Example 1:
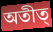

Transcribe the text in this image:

অতীত্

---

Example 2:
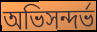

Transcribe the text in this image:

অভিসন্দর্ভ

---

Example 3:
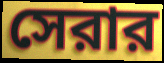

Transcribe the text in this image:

সেরার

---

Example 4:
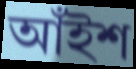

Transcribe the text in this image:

আঁইশ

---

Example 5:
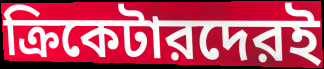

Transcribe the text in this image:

ক্রিকেটারদেরই